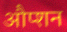
औप्शन